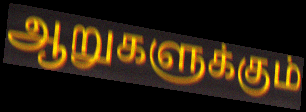
ஆறுகளுக்கும்